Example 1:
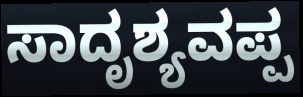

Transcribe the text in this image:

ಸಾದೃಶ್ಯವಪ್ಪ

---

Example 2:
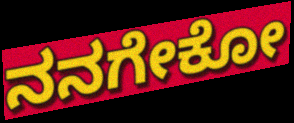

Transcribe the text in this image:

ನನಗೇಕೋ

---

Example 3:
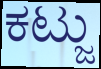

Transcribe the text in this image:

ಕಟ್ಜು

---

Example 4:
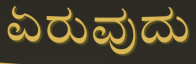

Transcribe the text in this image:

ಏರುವುದು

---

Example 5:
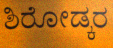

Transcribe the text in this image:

ಶಿರೋಡ್ಕರ